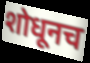
शोधूनच